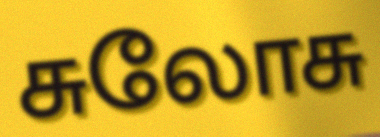
சுலோசு